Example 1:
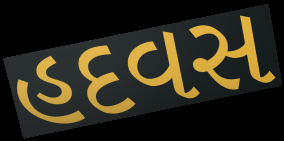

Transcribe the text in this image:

હદવસ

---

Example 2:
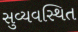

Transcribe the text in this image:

સુવ્યવસ્થિત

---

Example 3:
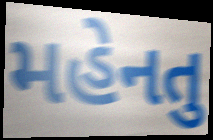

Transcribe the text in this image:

મહેનતુ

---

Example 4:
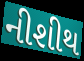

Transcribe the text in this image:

નીશીથ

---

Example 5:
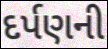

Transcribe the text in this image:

દર્પણની